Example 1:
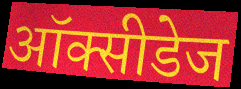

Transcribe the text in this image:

ऑक्सीडेज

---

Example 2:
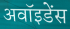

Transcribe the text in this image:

अवॉइडेंस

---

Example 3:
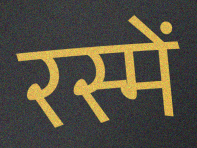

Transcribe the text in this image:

रस्‍में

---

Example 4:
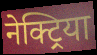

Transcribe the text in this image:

नेक्ट्रिया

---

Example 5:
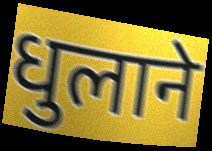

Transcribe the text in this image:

धुलाने